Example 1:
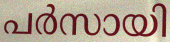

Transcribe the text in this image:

പർസായി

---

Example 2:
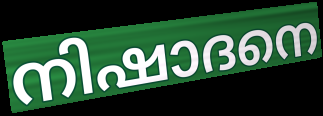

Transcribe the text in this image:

നിഷാദനെ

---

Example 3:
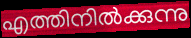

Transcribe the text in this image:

എത്തിനിൽക്കുന്നു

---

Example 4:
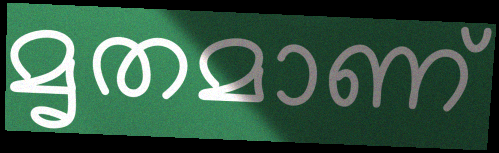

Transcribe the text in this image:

മൃതമാണ്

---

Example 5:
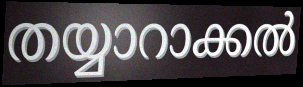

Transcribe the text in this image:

തയ്യാറാക്കൽ